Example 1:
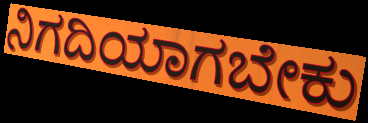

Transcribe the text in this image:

ನಿಗದಿಯಾಗಬೇಕು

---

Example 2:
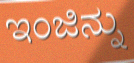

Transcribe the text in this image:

ಇಂಜಿನ್ನು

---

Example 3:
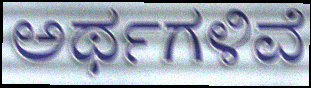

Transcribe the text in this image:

ಅರ್ಥಗಳಿವೆ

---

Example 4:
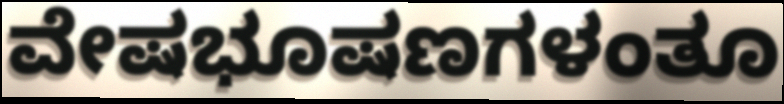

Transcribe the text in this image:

ವೇಷಭೂಷಣಗಳಂತೂ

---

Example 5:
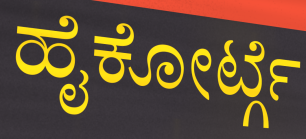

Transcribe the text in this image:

ಹೈಕೋರ್ಟ್ಗೆ